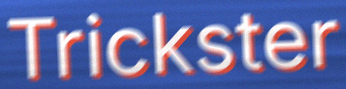
Trickster